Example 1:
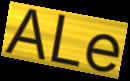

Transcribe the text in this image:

ALe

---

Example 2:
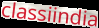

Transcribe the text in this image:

classiindia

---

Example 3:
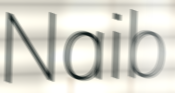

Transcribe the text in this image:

Naib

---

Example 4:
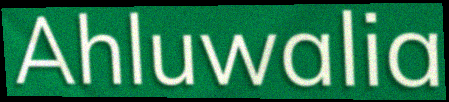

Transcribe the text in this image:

Ahluwalia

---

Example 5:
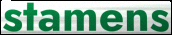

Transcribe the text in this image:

stamens